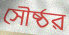
সৌষ্ঠৱ